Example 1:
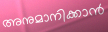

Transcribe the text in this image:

അനുമാനിക്കാൻ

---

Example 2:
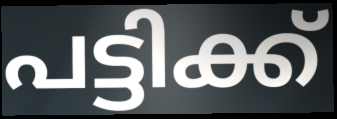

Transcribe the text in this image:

പട്ടിക്ക്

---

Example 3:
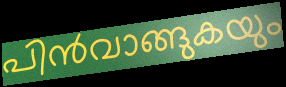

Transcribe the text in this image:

പിൻവാങ്ങുകയും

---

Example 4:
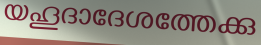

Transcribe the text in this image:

യഹൂദാദേശത്തേക്കു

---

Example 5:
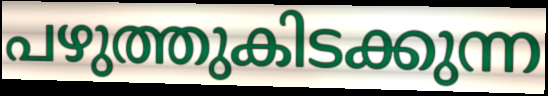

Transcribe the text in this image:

പഴുത്തുകിടക്കുന്ന